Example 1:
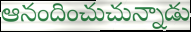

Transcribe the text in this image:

ఆనందించుచున్నాడు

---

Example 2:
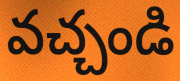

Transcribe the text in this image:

వచ్చండి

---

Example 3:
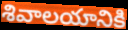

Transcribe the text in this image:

శివాలయానికి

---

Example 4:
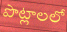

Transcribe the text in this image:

పొట్లాలలో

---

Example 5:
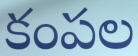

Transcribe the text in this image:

కంపల